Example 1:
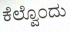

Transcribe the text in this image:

ಕೆಲ್ವೊಂದು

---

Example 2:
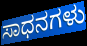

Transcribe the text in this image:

ಸಾಧನಗಳು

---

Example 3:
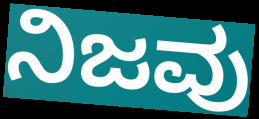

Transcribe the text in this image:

ನಿಜವು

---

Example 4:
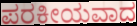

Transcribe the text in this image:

ಪರಕೀಯವಾದ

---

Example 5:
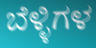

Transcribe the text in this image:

ಬೆಳ್ಳಿಗಳ